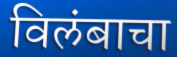
विलंबाचा